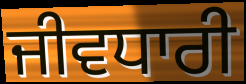
ਜੀਵਧਾਰੀ